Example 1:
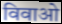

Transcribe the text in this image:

विवाओ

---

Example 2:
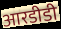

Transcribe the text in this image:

आरडीडी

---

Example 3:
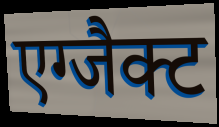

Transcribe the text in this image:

एग्जैक्ट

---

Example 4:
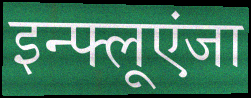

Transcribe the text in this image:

इन्फ्लूएंजा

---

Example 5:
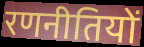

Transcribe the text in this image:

रणनीतियों